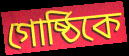
গোষ্ঠিকে